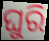
ଘୁରି